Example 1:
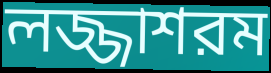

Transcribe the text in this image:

লজ্জাশরম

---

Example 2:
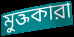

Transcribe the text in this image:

মুক্তকারা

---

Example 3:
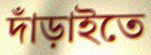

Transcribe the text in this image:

দাঁড়াইতে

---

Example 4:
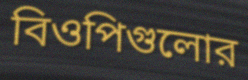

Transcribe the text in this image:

বিওপিগুলোর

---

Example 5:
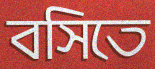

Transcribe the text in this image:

বসিতে